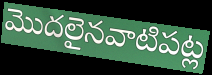
మొదలైనవాటిపట్ల